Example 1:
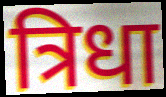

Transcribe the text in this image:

त्रिधा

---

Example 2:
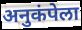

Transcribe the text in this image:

अनुकंपेला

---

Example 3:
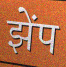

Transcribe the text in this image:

झेंप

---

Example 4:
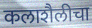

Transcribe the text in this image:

कलाशैलीचा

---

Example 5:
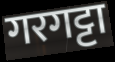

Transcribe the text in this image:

गरगट्टा